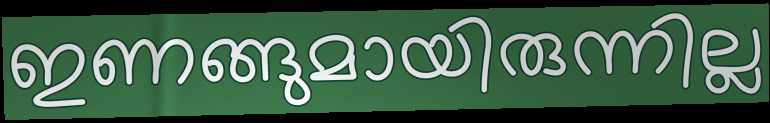
ഇണങ്ങുമായിരുന്നില്ല